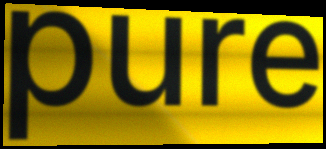
pure